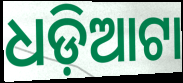
ଧଡ଼ିଆଟା